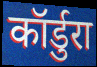
कॉर्डुरा